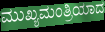
ಮುಖ್ಯಮಂತ್ರಿಯಾದ